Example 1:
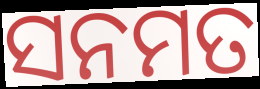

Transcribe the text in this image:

ସନମତ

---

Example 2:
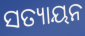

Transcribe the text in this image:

ସତ୍ୟାୟନ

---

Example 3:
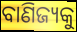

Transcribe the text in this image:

ବାଣିଜ୍ୟକୁ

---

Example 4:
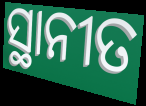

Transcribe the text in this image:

ସ୍ଥାନୀତ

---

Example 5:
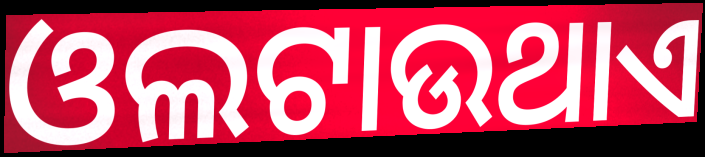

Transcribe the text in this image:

ଓଲଟାଉଥାଏ